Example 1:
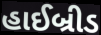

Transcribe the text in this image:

હાઈબ્રીડ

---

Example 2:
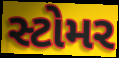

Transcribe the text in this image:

સ્ટોમર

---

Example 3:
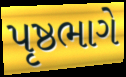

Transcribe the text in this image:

પૃષ્ઠભાગે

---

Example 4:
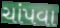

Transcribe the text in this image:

ચાંપવા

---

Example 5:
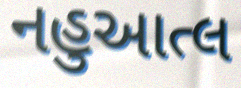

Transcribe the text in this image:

નહુઆત્લ